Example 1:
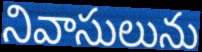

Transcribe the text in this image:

నివాసులును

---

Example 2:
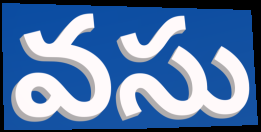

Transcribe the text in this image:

వసు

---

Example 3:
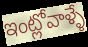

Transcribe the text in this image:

ఇంట్లోవాళ్ళే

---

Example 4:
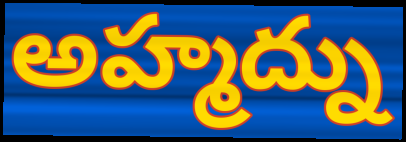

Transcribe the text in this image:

అహ్మద్ను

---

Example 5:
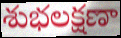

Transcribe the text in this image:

శుభలక్షణా